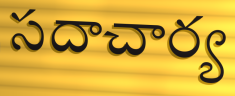
సదాచార్య